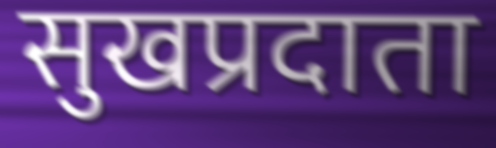
सुखप्रदाता